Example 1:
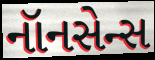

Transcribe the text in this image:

નૉનસેન્સ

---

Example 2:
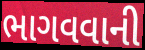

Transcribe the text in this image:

ભાગવવાની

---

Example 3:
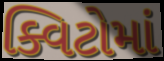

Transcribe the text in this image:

ક્વિટોમાં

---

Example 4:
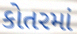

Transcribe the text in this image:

કોતરમાં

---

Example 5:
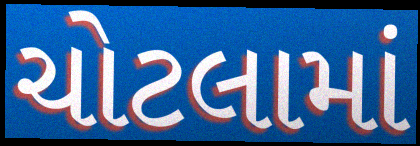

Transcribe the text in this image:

ચોટલામાં